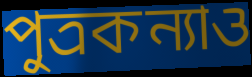
পুত্রকন্যাও